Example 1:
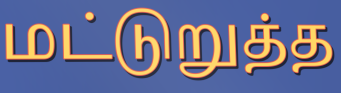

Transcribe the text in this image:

மட்டுறுத்த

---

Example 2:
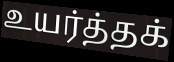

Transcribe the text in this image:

உயர்த்தக்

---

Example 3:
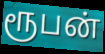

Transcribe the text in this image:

ரூபன்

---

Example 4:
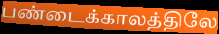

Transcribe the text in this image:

பண்டைக்காலத்திலே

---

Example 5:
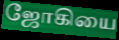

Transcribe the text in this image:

ஜோகியை